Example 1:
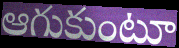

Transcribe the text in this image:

ఆగుకుంటూ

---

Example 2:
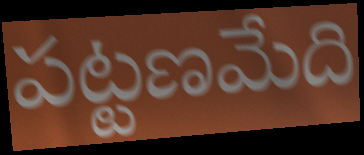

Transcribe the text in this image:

పట్టణమేది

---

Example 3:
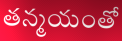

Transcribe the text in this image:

తన్మయంతో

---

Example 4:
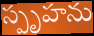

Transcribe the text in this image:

స్పృహను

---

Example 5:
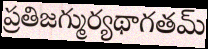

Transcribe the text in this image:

ప్రతిజగ్ముర్యథాగతమ్